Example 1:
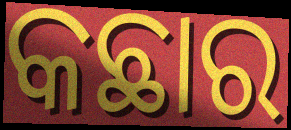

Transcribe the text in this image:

କଛାର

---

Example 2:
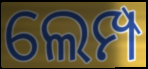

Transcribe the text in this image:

ଲେମ୍ପ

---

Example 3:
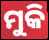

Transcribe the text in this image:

ମୁକି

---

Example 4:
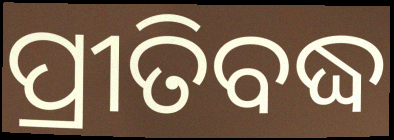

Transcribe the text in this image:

ପ୍ରୀତିବଦ୍ଧ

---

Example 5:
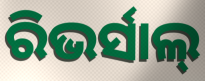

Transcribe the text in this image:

ରିଭର୍ସାଲ୍